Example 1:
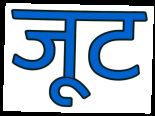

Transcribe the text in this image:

जूट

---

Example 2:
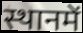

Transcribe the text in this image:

स्थानमें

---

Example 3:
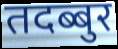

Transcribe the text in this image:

तदब्बुर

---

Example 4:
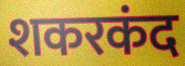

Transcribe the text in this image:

शकरकंद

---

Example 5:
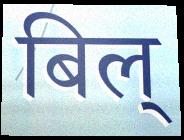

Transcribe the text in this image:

बिल्